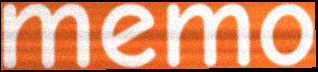
memo